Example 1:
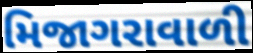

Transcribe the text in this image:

મિજાગરાવાળી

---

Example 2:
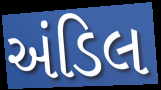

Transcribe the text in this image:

અંડિલ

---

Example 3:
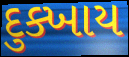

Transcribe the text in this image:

દુક્ખાય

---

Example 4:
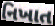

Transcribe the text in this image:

નિખાત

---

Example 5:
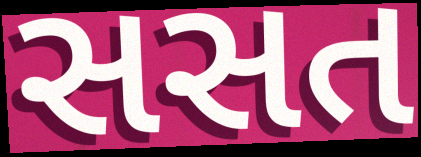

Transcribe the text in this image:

સસત